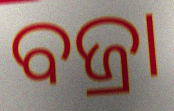
ବଜ୍ରା